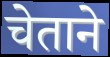
चेताने